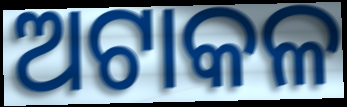
ଅଟାକଳ